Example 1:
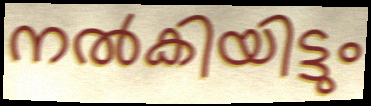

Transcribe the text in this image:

നൽകിയിട്ടും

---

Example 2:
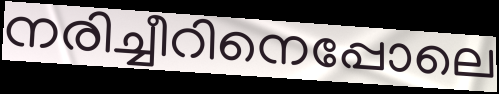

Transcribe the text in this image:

നരിച്ചീറിനെപ്പോലെ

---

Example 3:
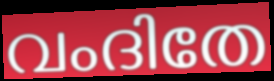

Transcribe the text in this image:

വംദിതേ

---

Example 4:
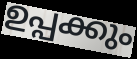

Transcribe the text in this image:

ഉപ്പക്കും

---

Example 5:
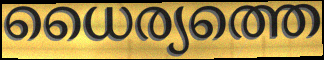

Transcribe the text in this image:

ധൈര്യത്തെ